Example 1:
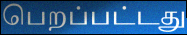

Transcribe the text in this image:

பெறப்பட்டது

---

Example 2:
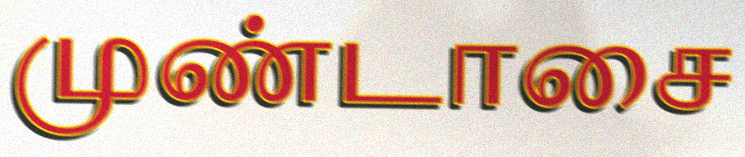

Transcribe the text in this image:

முண்டாசை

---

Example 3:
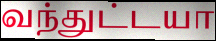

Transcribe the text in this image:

வந்துட்டயா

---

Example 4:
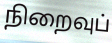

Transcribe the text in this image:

நிறைவுப்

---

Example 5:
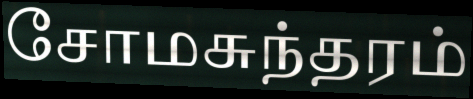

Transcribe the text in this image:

சோமசுந்தரம்